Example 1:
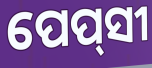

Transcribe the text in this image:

ପେପ୍‌ସୀ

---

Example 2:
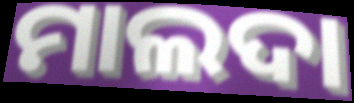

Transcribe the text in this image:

ମାଲଦା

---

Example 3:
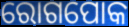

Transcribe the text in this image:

ରୋଗପୋକ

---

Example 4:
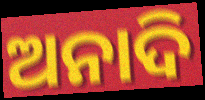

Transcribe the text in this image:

ଅନାଦି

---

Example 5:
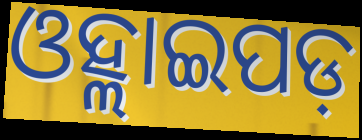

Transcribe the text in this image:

ଓହ୍ଲାଇପଡ଼